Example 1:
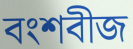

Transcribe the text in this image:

বংশবীজ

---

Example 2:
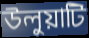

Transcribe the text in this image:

উলুয়াটি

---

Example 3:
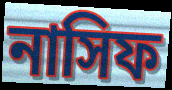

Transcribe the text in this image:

নাসিফ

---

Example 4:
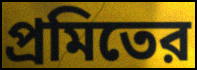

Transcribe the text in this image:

প্রমিতের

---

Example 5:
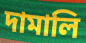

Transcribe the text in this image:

দামালি